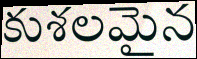
కుశలమైన